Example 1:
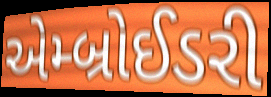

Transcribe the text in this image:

એમ્બ્રોઈડરી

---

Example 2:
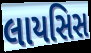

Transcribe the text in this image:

લાયસિસ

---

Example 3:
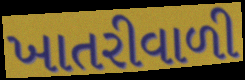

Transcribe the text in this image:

ખાતરીવાળી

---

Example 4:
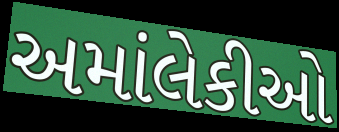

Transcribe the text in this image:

અમાંલેકીઓ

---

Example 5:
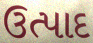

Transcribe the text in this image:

ઉત્પાદ